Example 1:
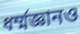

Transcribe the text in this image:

ধর্ম্মজ্ঞানও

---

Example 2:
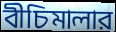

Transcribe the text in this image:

বীচিমালার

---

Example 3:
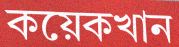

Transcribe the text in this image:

কয়েকখান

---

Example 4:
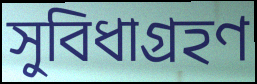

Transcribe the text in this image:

সুবিধাগ্রহণ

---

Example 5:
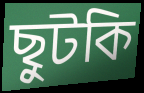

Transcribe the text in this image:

ছুটকি